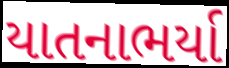
યાતનાભર્યા